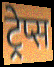
ट्रेप्स